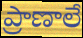
ప్రాణాలే